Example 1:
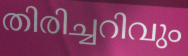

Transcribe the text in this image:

തിരിച്ചറിവും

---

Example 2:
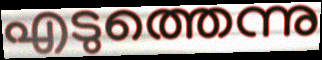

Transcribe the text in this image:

എടുത്തെന്നു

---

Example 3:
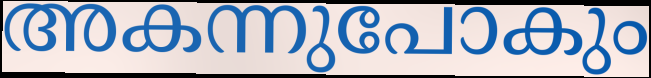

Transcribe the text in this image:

അകന്നുപോകും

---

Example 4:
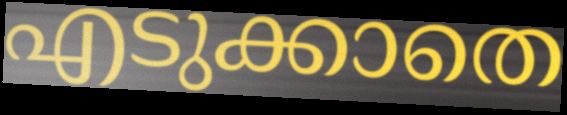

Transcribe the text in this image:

എടുക്കാതെ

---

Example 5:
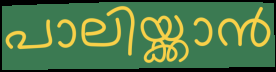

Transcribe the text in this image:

പാലിയ്ക്കാൻ